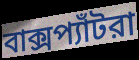
বাক্সপ্যাঁটরা